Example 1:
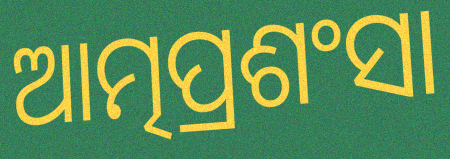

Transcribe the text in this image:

ଆତ୍ମପ୍ରଶଂସା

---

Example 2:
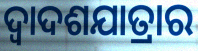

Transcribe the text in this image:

ଦ୍ୱାଦଶଯାତ୍ରାର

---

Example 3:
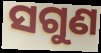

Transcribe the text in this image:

ସଗୁଣ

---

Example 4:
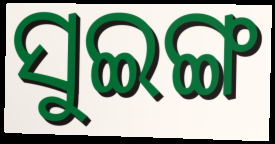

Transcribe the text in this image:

ସୁଇଙ୍ଗ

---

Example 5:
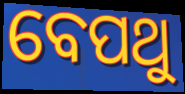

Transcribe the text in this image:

ବେପଥୁ